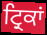
ਟ੍ਰਿਕਾਂ